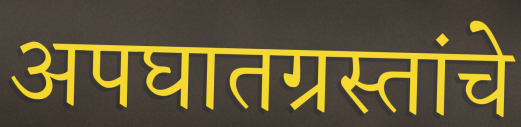
अपघातग्रस्तांचे